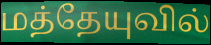
மத்தேயுவில்